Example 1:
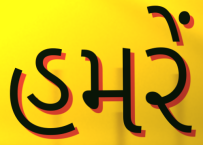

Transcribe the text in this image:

હમરેં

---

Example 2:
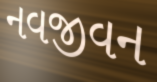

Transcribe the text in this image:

નવજીવન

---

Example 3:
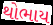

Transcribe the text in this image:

થોભાય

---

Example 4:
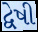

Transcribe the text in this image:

દ્વેષી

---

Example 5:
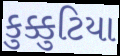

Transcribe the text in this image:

કુક્કુટિયા